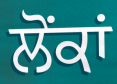
ਲੋਂਕਾਂ